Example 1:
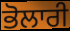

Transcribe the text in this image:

ਭੋਲਾਰੀ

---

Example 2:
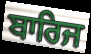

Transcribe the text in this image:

ਬਾਰਿਜ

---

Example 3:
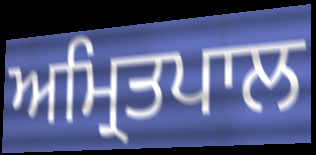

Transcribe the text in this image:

ਅਮ੍ਰਿਤਪਾਲ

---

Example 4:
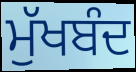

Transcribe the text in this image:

ਮੁੱਖਬੰਦ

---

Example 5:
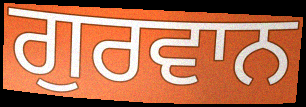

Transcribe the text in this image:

ਗੁਰਵਾਨ